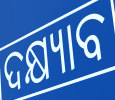
ଦକ୍ଷ୍ୟାବ